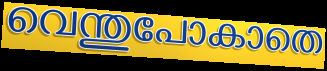
വെന്തുപോകാതെ